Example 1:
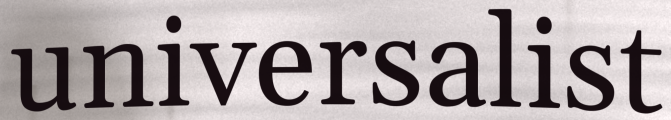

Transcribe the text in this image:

universalist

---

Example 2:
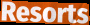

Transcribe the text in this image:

Resorts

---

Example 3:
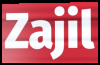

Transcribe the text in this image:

Zajil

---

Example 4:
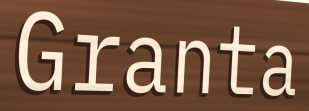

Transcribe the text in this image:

Granta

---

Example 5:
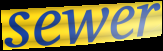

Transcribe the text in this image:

sewer